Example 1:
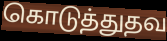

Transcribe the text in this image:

கொடுத்துதவ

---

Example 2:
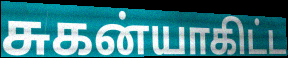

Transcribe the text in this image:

சுகன்யாகிட்ட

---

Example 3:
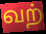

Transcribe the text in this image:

வற்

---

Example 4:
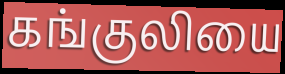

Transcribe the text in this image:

கங்குலியை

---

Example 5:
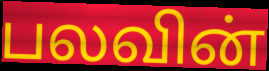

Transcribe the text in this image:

பலவின்